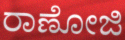
ರಾಣೋಜಿ